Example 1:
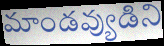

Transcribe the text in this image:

మాండవ్యుడిని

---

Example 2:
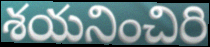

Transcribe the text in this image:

శయనించిరి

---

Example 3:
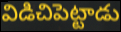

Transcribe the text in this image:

విడిచిపెట్టాడు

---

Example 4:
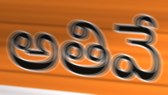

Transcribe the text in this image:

అతివే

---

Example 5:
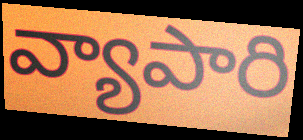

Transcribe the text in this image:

వ్యాపారి